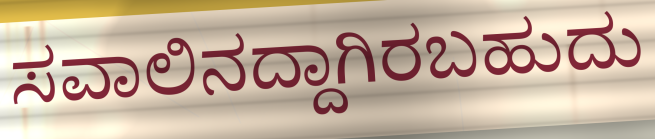
ಸವಾಲಿನದ್ದಾಗಿರಬಹುದು